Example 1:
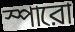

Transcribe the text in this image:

স্পারো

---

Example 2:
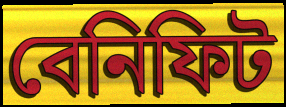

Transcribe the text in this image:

বেনিফিট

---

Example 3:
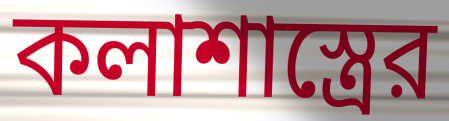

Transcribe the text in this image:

কলাশাস্ত্রের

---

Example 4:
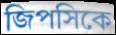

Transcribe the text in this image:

জিপসিকে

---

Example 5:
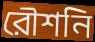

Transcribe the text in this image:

রৌশনি